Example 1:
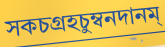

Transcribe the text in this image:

সকচগ্রহচুম্বনদানম্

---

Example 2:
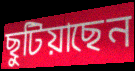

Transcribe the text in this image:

ছুটিয়াছেন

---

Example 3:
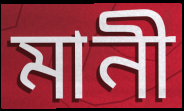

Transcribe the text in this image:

মানী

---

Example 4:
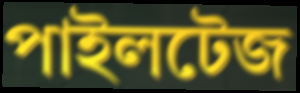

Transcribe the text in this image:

পাইলটেজ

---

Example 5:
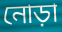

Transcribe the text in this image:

নোড়া